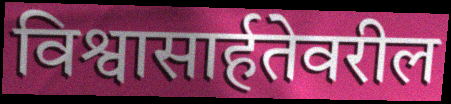
विश्वासार्हतेवरील